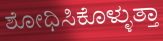
ಶೋಧಿಸಿಕೊಳ್ಳುತ್ತಾ